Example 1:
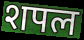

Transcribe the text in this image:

शपल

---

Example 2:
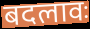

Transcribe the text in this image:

बदलावः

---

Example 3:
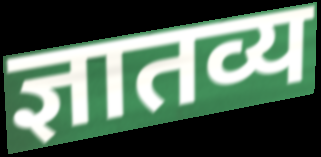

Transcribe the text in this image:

ज्ञातव्य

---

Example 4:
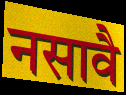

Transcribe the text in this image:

नसावै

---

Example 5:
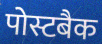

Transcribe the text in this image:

पोस्टबैक